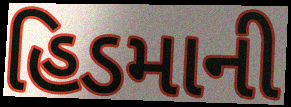
હિડમાની